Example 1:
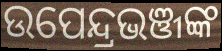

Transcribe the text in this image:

ଉପେନ୍ଦ୍ରଭଞ୍ଜଙ୍କ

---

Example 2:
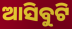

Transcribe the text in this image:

ଆସିବୁଟି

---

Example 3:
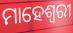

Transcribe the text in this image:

ମାହେଶ୍ଵରୀ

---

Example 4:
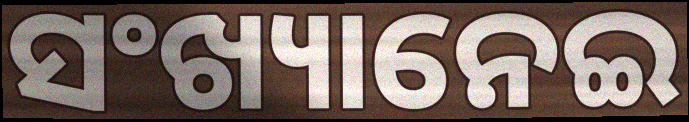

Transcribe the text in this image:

ସଂଖ୍ୟାନେଇ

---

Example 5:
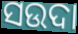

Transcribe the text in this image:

ସଉଦା